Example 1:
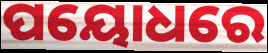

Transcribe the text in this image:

ପୟୋଧରେ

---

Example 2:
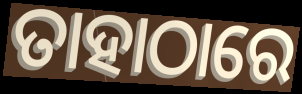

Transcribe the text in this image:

ତାହାଠାରେ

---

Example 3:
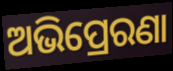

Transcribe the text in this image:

ଅଭିପ୍ରେରଣା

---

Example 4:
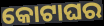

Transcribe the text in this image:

କୋଟାଘର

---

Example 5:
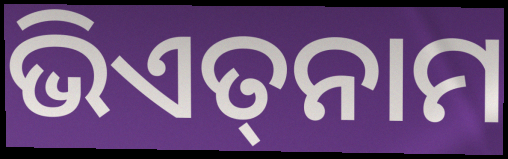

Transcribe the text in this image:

ଭିଏତ୍‌ନାମ